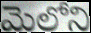
మెలోని